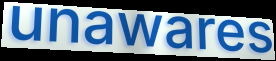
unawares